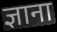
ज्ञाना